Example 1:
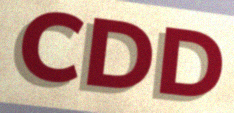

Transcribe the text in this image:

CDD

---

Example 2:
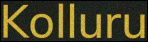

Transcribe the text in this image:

Kolluru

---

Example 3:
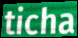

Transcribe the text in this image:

ticha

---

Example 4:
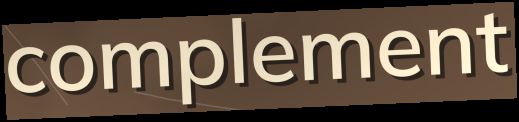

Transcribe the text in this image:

complement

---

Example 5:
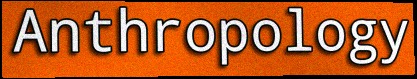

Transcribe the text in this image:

Anthropology